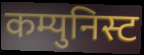
कम्युनिस्ट